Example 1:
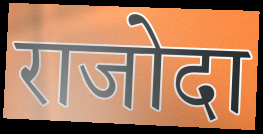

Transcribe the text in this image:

राजोदा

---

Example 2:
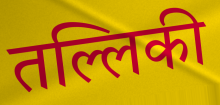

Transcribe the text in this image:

तल्लिकी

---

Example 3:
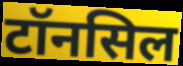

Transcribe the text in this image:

टॉनसिल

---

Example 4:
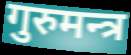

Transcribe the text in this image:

गुरुमन्त्र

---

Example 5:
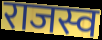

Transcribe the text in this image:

राजस्‍व